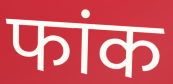
फांक